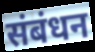
संबंधन